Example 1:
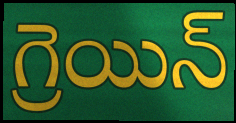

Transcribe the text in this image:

గ్రెయిన్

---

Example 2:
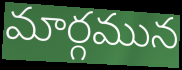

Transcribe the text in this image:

మార్గమున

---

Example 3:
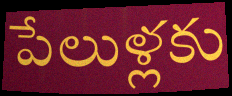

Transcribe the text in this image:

పేలుళ్లకు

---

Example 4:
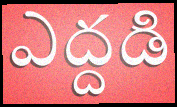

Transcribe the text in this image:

ఎద్దడి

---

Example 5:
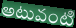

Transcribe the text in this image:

అటువంటి